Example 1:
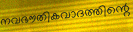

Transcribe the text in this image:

നവഭൗതികവാദത്തിന്റെ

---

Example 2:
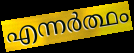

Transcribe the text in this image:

എന്നർത്ഥം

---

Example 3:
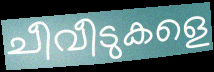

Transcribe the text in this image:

ചീവീടുകളെ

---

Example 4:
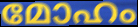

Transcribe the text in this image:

മോഹം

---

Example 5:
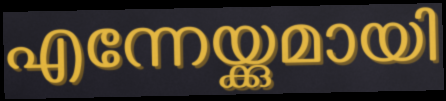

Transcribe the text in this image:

എന്നേയ്ക്കുമായി